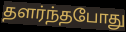
தளர்ந்தபோது